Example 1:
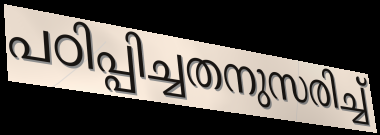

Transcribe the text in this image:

പഠിപ്പിച്ചതനുസരിച്ച്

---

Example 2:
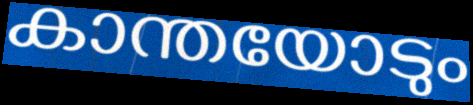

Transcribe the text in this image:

കാന്തയോടും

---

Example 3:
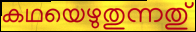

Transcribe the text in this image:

കഥയെഴുതുന്നതു്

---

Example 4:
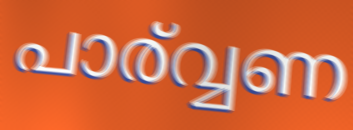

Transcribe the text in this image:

പാര്വ്വണ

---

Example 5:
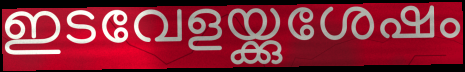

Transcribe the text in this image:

ഇടവേളയ്ക്കുശേഷം